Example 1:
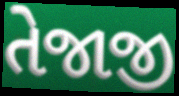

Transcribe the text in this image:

તેજાજી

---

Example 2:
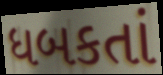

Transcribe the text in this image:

ધબકતાં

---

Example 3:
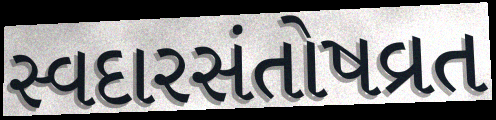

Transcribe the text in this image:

સ્વદારસંતોષવ્રત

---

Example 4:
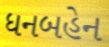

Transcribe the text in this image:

ધનબહેન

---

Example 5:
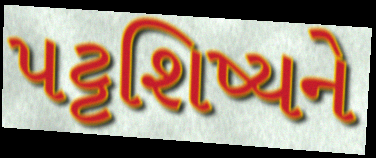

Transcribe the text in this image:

પટ્ટશિષ્યને